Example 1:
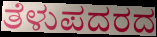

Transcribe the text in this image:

ತೆಳುಪದರದ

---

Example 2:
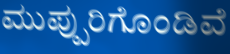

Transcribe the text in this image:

ಮುಪ್ಪುರಿಗೊಂಡಿವೆ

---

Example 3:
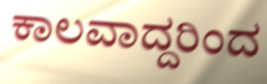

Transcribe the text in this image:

ಕಾಲವಾದ್ದರಿಂದ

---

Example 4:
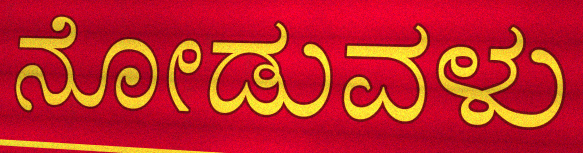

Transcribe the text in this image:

ನೋಡುವಳು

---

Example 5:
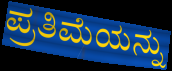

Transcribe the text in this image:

ಪ್ರತಿಮೆಯನ್ನು